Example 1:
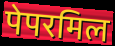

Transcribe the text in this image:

पेपरमिल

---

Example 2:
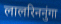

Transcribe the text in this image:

लालरिननुंगा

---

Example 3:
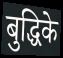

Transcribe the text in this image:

बुद्धिके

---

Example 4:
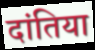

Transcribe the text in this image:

दांतिया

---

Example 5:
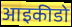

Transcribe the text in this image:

आइकीडो